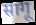
सागू